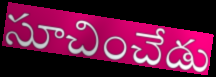
సూచించేడు